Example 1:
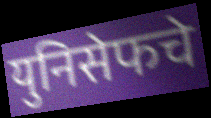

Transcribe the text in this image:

युनिसेफचे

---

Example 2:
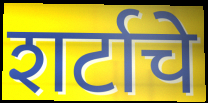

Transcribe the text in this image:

शर्टाचे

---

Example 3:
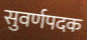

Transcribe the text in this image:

सुवर्णपदक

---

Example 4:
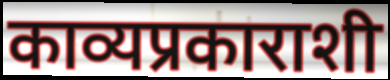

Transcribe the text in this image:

काव्यप्रकाराशी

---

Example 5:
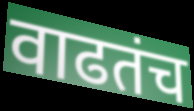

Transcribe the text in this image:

वाढतंच